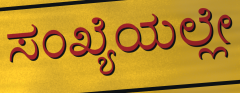
ಸಂಖ್ಯೆಯಲ್ಲೇ